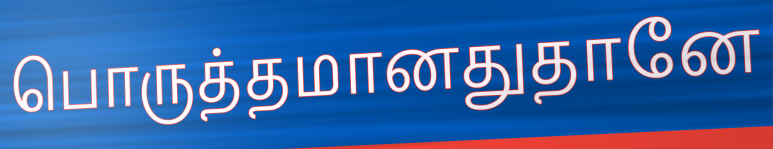
பொருத்தமானதுதானே